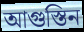
আগুস্তিন